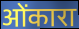
ओंकारा